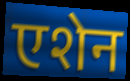
एशेन